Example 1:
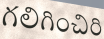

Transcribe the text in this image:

గలిగించిరి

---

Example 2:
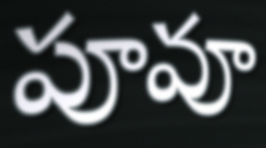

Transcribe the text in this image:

పూవూ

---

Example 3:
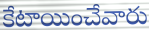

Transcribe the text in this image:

కేటాయించేవారు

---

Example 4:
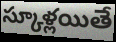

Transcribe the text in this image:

స్కూళ్లయితే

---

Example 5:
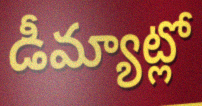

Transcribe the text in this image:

డీమ్యాట్లో